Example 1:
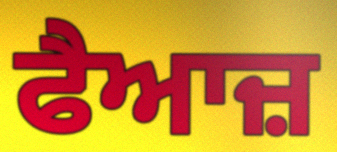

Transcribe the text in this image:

ਫੈਆਜ਼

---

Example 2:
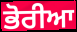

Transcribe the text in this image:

ਭੋਰੀਆ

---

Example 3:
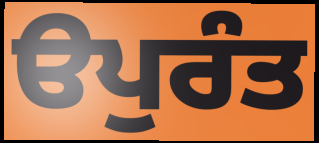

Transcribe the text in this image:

ੳਪੁਰੰਤ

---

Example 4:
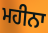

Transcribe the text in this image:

ਮਹੀਨਾ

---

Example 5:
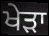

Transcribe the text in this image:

ਖੇੜਾ